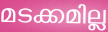
മടക്കമില്ല